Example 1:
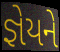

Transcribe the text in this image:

જ્ઞેયને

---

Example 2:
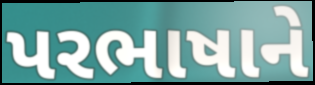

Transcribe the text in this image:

પરભાષાને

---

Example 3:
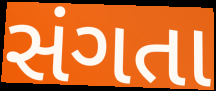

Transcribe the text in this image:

સંગતા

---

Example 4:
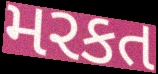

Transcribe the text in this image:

મરકત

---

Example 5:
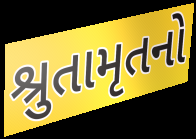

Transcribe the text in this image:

શ્રુતામૃતનો